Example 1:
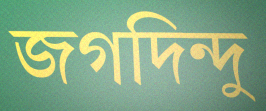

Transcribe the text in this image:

জগদিন্দু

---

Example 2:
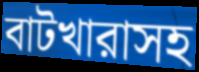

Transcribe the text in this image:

বাটখারাসহ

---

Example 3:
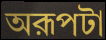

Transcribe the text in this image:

অরূপটা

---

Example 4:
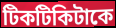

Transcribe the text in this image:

টিকটিকিটাকে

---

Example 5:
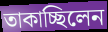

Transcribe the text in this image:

তাকাচ্ছিলেন